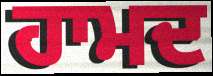
ਹਾਮਦ